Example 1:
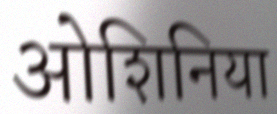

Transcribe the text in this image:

ओशिनिया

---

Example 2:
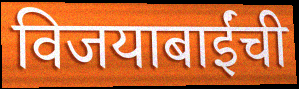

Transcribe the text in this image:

विजयाबाईंची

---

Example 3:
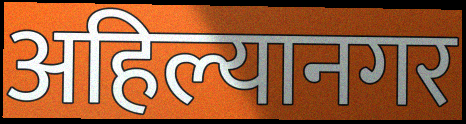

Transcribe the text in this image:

अहिल्यानगर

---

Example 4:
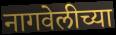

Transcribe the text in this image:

नागवेलीच्या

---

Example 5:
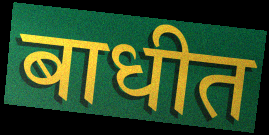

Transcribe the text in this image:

बाधीत